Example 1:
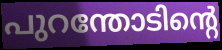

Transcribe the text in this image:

പുറന്തോടിന്റെ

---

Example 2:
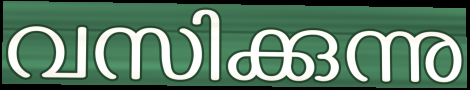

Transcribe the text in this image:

വസിക്കുന്നു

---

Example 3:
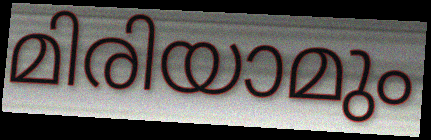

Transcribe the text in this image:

മിരിയാമും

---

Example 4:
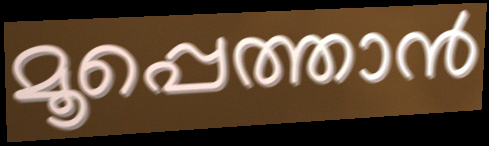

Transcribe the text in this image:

മൂപ്പെത്താൻ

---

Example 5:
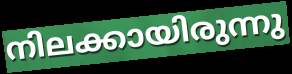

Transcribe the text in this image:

നിലക്കായിരുന്നു